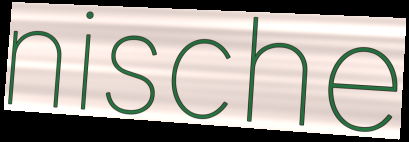
nische